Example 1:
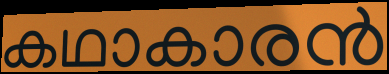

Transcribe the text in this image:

കഥാകാരൻ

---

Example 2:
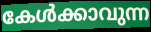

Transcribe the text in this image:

കേൾക്കാവുന്ന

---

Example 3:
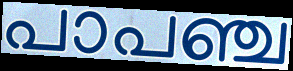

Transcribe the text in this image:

പാപഞ്ച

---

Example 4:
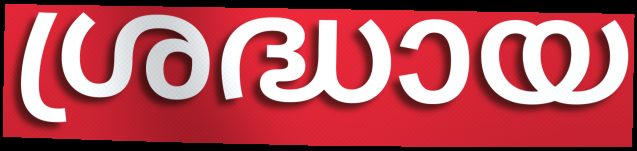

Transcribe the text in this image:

ശ്രദ്ധായ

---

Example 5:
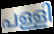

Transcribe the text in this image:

പള്ളി